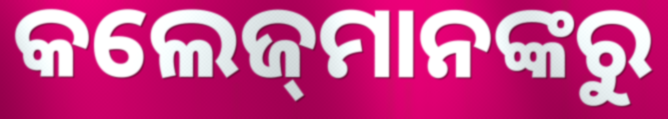
କଲେଜ୍‌ମାନଙ୍କରୁ